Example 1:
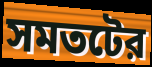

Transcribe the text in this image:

সমতটের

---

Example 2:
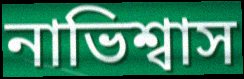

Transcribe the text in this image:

নাভিশ্বাস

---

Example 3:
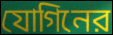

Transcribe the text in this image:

যোগিনের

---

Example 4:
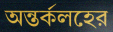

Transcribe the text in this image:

অন্তর্কলহের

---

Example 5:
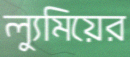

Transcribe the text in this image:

ল্যুমিয়ের